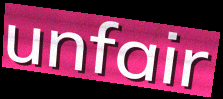
unfair